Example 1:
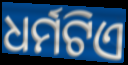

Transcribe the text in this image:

ଧର୍ମଟିଏ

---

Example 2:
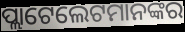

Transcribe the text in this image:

ପ୍ଲାଟେଲେଟମାନଙ୍କର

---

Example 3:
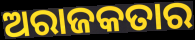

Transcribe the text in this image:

ଅରାଜକତାର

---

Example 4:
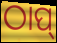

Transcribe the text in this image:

ଠାପ୍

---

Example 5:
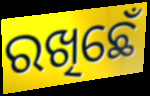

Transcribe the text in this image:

ରଖିଛେଁ